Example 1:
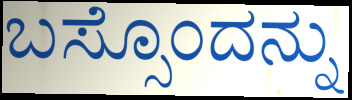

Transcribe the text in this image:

ಬಸ್ಸೊಂದನ್ನು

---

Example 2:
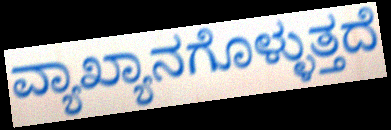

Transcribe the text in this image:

ವ್ಯಾಖ್ಯಾನಗೊಳ್ಳುತ್ತದೆ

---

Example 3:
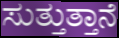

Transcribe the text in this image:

ಸುತ್ತುತ್ತಾನೆ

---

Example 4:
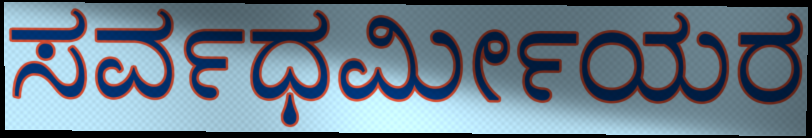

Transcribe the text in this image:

ಸರ್ವಧರ್ಮೀಯರ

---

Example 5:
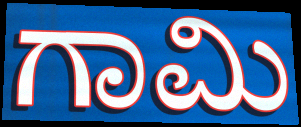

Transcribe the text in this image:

ಗಾಮಿ